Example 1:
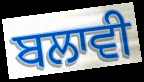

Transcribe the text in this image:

ਬਲਾਵੀ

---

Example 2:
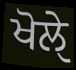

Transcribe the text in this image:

ਖੋਲੑੇ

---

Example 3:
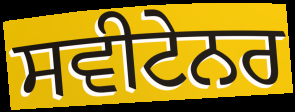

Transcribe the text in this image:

ਸਵੀਟੇਨਰ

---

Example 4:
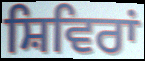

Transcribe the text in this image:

ਸ਼ਿਵਿਰਾਂ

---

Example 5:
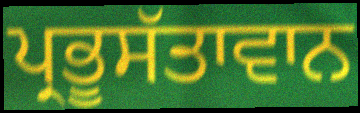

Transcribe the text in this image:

ਪ੍ਰਭੂਸੱਤਾਵਾਨ